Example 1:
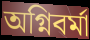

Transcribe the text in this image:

অগ্নিবর্মা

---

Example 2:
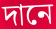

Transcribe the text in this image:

দানে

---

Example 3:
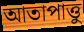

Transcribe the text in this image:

আতাপাত্তু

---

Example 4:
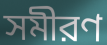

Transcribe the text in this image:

সমীরণ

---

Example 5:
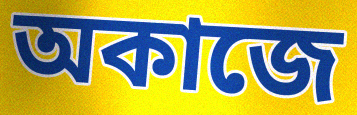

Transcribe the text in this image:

অকাজে